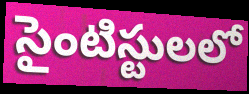
సైంటిస్టులలో